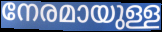
നേരമായുള്ള